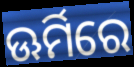
ଊର୍ମିରେ